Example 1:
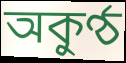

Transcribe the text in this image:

অকুণ্ঠ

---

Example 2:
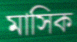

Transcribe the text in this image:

মাসিক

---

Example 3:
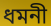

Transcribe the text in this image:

ধমনী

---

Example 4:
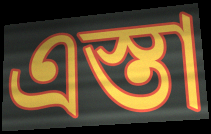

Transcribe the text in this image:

এস্তা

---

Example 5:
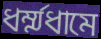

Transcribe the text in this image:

ধর্ম্মধামে